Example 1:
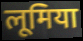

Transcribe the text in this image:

लूमिया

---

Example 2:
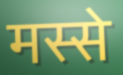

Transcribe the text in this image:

मस्से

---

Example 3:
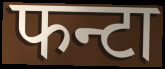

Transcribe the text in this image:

फन्टा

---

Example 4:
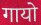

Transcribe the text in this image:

गायो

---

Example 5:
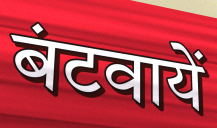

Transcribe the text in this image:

बंटवायें